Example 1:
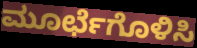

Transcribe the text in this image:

ಮೂರ್ಛೆಗೊಳಿಸಿ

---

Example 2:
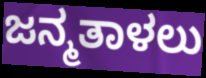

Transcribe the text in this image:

ಜನ್ಮತಾಳಲು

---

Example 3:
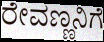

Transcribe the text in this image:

ರೇವಣ್ಣನಿಗೆ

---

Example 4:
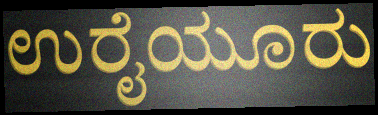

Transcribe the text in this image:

ಉರೈಯೂರು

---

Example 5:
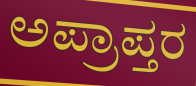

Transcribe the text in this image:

ಅಪ್ರಾಪ್ತರ